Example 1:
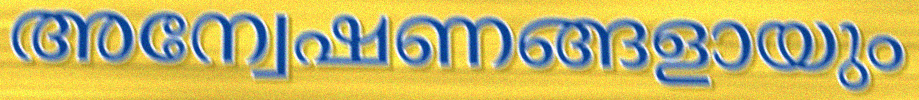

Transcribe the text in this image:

അന്വേഷണങ്ങളായും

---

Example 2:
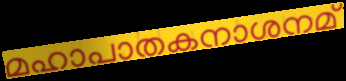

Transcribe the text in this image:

മഹാപാതകനാശനമ്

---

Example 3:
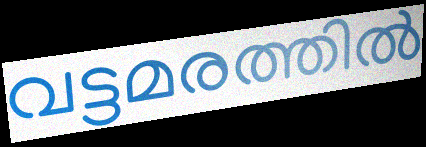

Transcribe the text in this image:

വട്ടമരത്തിൽ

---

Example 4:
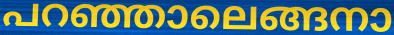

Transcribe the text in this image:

പറഞ്ഞാലെങ്ങനാ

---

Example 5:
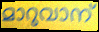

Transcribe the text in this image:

മാറുവാന്